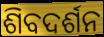
ଶିବଦର୍ଶନ